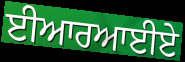
ਈਆਰਆਈਏ